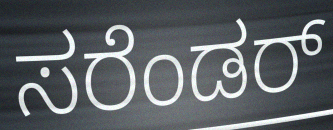
ಸರೆಂಡರ್